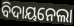
ବିଦାୟନେଲା